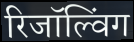
रिजॉल्विंग